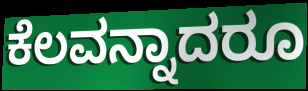
ಕೆಲವನ್ನಾದರೂ